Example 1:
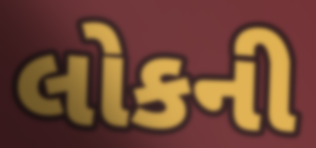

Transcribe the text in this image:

લોકની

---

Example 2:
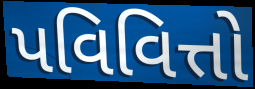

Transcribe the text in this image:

પવિવિત્તો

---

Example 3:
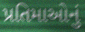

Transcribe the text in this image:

પ્રતિમાઓનું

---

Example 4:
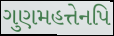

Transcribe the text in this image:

ગુણમહત્તેનપિ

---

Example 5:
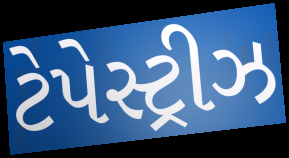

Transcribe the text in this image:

ટેપેસ્ટ્રીઝ